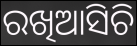
ରଖିଆସିଚି